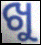
ଖୁ